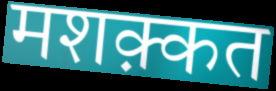
मशक़्कत